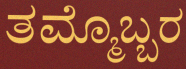
ತಮ್ಮೊಬ್ಬರ